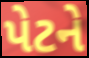
પેટને